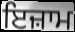
ਇਜ਼ਾਮ